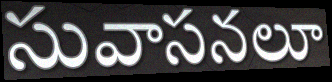
సువాసనలూ